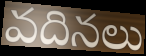
వదినలు